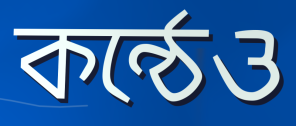
কন্ঠেও